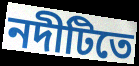
নদীটিতে